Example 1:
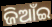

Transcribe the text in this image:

ଜିଆଁଇ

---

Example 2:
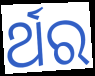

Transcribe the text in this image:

ର୍ଥର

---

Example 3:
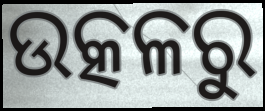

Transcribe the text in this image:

ଉତ୍କଳରୁ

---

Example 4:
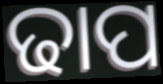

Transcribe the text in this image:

ଢାପ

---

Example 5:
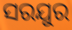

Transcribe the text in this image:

ସରଯୁର